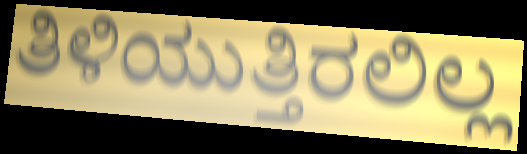
ತಿಳಿಯುತ್ತಿರಲಿಲ್ಲ